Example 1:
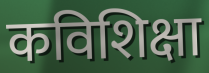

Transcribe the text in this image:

कविशिक्षा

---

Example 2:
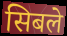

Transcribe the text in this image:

सिबले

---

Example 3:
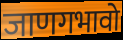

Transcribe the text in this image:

जाणगभावो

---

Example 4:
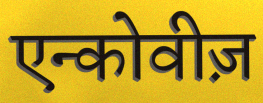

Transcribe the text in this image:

एन्कोवीज़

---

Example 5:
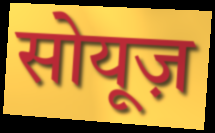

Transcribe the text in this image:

सोयूज़